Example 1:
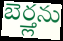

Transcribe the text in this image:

బెర్త్లను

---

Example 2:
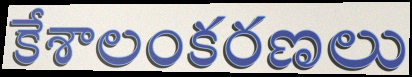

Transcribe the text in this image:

కేశాలంకరణలు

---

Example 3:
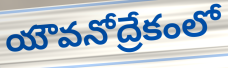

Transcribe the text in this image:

యౌవనోద్రేకంలో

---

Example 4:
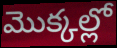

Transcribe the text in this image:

మొక్కల్లో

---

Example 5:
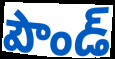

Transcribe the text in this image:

పౌండ్